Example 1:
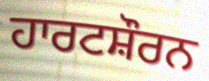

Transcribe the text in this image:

ਹਾਰਟਸ਼ੌਰਨ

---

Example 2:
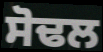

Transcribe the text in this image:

ਸੋਢਲ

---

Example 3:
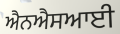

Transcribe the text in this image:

ਐਨਐਸਆਈ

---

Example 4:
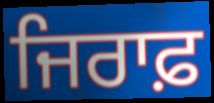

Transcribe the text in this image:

ਜਿਰਾਫ਼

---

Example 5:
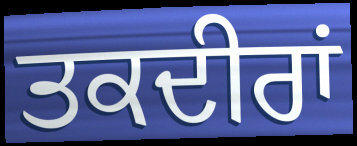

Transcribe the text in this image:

ਤਕਦੀਰਾਂ